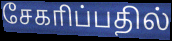
சேகரிப்பதில்